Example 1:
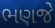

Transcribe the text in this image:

ભણજે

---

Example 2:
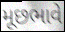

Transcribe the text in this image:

મૂછભાવે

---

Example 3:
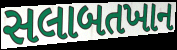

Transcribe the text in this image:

સલાબતખાન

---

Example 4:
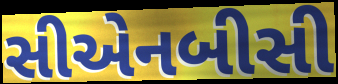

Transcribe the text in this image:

સીએનબીસી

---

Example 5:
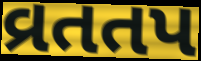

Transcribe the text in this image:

વ્રતતપ